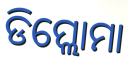
ଡିପ୍ଲୋମା